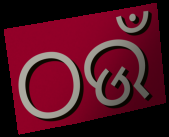
ଠଉଁ